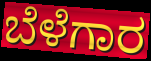
ಬೆಳೆಗಾರ